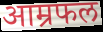
आम्रफल